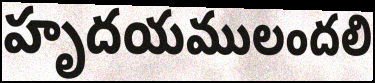
హృదయములందలి